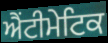
ਐਂਟੀਮੇਟਿਕ